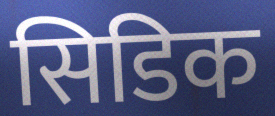
सिडिक